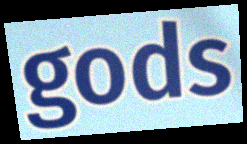
gods